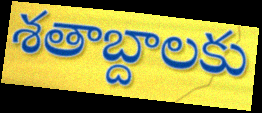
శతాబ్దాలకు